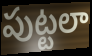
పుట్టలా